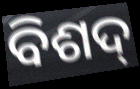
ବିଶଦ୍